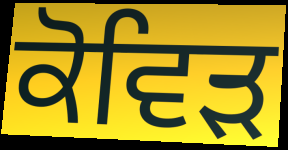
ਕੋਵਿਡ਼